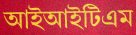
আইআইটিএম